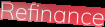
Refinance